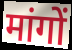
मांगों